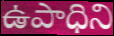
ఉపాధిని